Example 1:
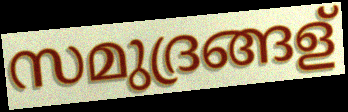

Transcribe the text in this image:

സമുദ്രങ്ങള്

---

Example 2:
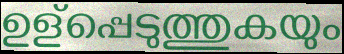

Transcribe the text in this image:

ഉള്പ്പെടുത്തുകയും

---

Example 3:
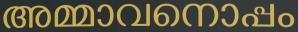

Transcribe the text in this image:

അമ്മാവനൊപ്പം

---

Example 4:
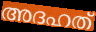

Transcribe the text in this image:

അദഹത്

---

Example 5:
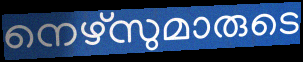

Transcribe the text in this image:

നെഴ്സുമാരുടെ